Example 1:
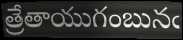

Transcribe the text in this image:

త్రేతాయుగంబునఁ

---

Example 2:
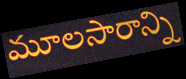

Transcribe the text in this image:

మూలసారాన్ని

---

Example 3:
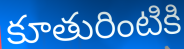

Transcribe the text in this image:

కూతురింటికి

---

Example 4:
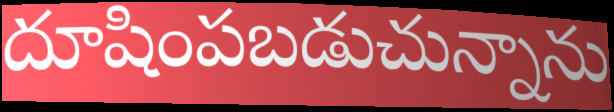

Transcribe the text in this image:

దూషింపబడుచున్నాను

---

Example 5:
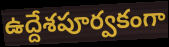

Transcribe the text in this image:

ఉద్దేశపూర్వకంగా